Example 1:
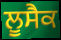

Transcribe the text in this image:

ਲੂਸੈਕ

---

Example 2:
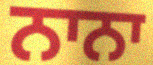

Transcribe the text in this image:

ਨਾਨਾ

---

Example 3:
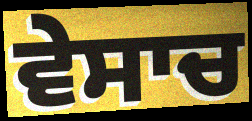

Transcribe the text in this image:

ਵੇਸਾਚ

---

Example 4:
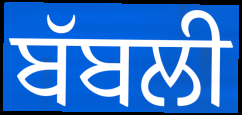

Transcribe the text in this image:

ਬੱਬਲੀ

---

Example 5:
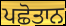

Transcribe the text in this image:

ਪਛੋਤਾਨ